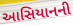
આસિયાનની